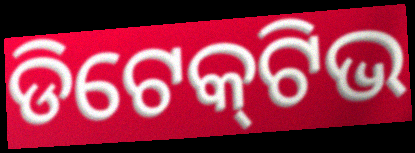
ଡିଟେକ୍‍ଟିଭ